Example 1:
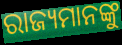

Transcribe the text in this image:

ରାଜ୍ଯମାନଙ୍କୁ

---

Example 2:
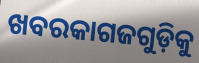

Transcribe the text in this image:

ଖବରକାଗଜଗୁଡ଼ିକୁ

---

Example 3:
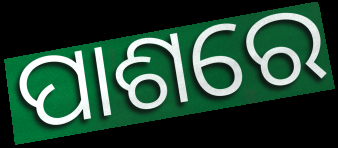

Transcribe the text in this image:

ପାଶରେ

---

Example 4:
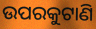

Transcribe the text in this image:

ଉପରକୁଟାଣି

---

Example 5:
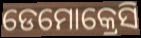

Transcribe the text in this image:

ଡେମୋକ୍ରେସି